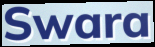
Swara